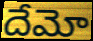
దేమో